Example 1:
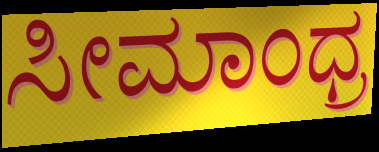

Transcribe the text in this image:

ಸೀಮಾಂಧ್ರ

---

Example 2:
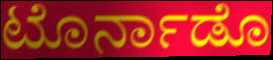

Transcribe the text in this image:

ಟೊರ್ನಾಡೊ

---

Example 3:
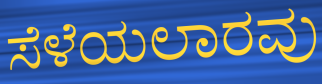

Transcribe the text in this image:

ಸೆಳೆಯಲಾರವು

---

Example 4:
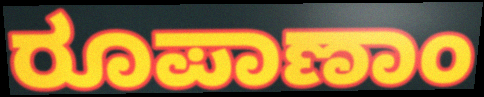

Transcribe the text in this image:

ರೂಪಾಣಾಂ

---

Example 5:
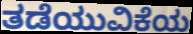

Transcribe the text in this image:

ತಡೆಯುವಿಕೆಯ